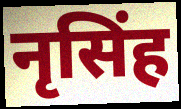
नृसिंह